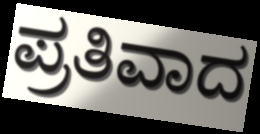
ಪ್ರತಿವಾದ